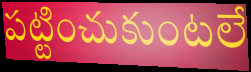
పట్టించుకుంటలే